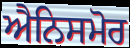
ਐਨਿਸਮੋਰ